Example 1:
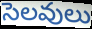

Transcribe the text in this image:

సెలవులు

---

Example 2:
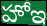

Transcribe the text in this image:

హోఇ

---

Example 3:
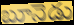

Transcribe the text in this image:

బూనెడు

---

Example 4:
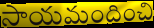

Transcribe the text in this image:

సాయమందించి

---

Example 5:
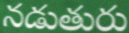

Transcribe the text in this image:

నడుతురు